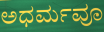
ಅಧರ್ಮವೂ